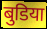
बुडिया